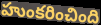
హుంకరించింది